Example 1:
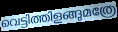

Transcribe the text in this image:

വെട്ടിത്തിളങ്ങുമത്രേ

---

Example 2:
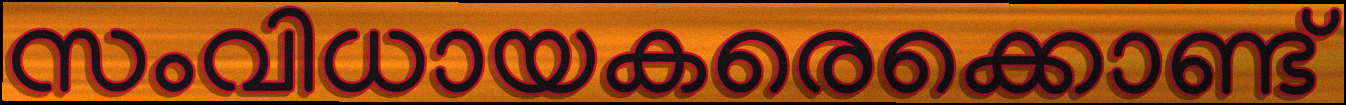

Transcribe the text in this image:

സംവിധായകരെക്കൊണ്ട്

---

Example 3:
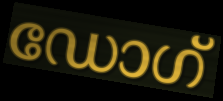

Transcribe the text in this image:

ഡോഗ്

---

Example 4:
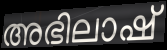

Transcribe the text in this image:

അഭിലാഷ്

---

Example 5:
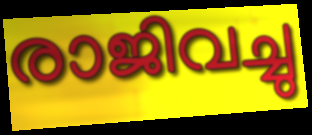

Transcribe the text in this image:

രാജിവച്ചു